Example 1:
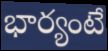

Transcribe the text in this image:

భార్యంటే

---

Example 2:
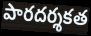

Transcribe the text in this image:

పారదర్శకత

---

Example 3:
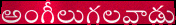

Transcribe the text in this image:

అంగీలుగలవాడు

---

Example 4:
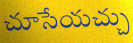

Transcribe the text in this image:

చూసేయచ్చు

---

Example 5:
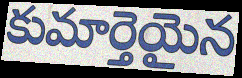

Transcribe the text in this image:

కుమార్తెయైన